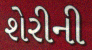
શેરીની